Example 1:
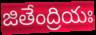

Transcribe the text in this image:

జితేంద్రియః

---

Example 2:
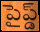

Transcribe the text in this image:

పైప్డ్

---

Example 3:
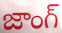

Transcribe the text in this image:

జాంగ్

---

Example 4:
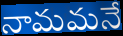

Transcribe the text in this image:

నామమనే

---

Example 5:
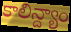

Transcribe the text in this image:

కాలిన్ద్యాం